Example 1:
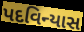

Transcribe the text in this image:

પદવિન્યાસ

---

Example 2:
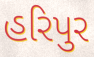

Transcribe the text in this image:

હરિપુર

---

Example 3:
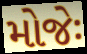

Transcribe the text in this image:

મોજેઃ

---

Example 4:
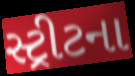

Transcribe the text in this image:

સ્ટ્રીટના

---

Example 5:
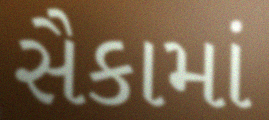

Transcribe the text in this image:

સૈકામાં